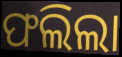
ଫଲିଲା